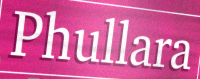
Phullara